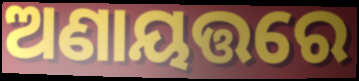
ଅଣାୟତ୍ତରେ